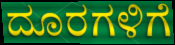
ದೂರಗಳಿಗೆ